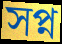
সপ্ন